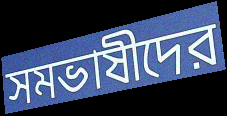
সমভাষীদের